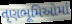
તૃણભૂમિઓમાં